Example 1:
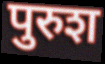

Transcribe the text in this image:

पुरुश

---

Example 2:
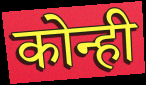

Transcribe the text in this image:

कोन्ही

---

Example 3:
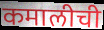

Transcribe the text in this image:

कमालीची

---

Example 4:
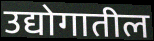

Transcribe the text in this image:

उद्योगातील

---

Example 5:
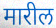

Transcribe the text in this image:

मारील